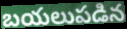
బయలుపడిన